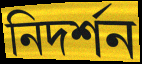
নিদৰ্শন